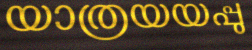
യാത്രയയപ്പു